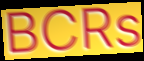
BCRs